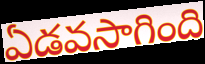
ఏడవసాగింది